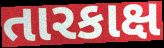
તારકાક્ષ